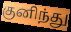
குனிந்து